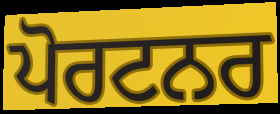
ਪੋਰਟਨਰ